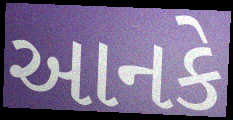
આનકે